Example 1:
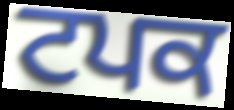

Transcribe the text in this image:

ਟਪਕ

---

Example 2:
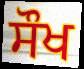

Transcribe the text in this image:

ਸੌਖ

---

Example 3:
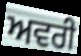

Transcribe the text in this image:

ਅਵਰੀ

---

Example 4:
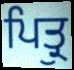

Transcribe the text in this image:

ਪਿਤ੍ਰੁ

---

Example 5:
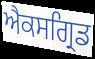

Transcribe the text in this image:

ਐਕਸਗ੍ਰਿਡ